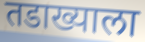
तडाख्याला